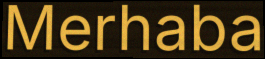
Merhaba